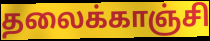
தலைக்காஞ்சி